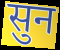
सुन